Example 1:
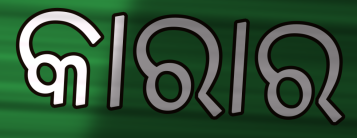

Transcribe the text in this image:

କାରାର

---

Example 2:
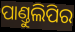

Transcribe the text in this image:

ପାଣ୍ତୁଲିପିର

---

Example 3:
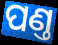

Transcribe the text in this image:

ପଣ୍ତ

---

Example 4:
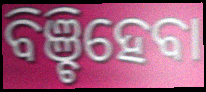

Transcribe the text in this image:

ବିଞ୍ଚିହେବା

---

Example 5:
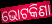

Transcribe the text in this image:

ଭୋଟକିଣା